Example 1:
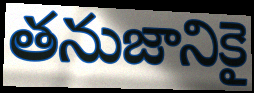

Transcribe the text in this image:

తనుజానికై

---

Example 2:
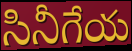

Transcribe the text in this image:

సినీగేయ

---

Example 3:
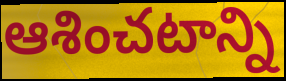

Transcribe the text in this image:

ఆశించటాన్ని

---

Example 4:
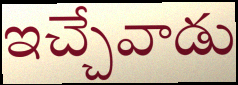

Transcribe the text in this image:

ఇచ్చేవాడు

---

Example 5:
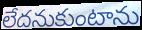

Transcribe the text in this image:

లేదనుకుంటాను